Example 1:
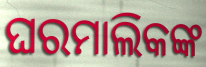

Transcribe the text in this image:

ଘରମାଲିକଙ୍କ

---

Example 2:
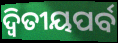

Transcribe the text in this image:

ଦ୍ୱିତୀୟପର୍ବ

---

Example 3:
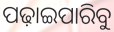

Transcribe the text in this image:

ପଢ଼ାଇପାରିବୁ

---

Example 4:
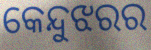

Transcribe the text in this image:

କେନ୍ଦୁଝରର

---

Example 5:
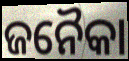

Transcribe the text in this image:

ଜନୈକା